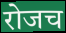
रोजच